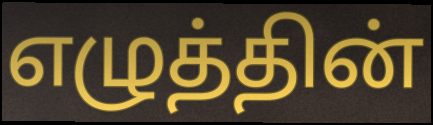
எழுத்தின்